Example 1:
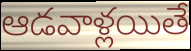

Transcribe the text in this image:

ఆడవాళ్లయితే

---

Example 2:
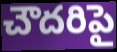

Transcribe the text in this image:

చౌదరిపై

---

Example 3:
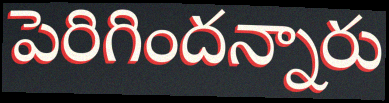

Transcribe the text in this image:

పెరిగిందన్నారు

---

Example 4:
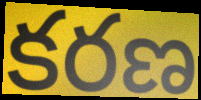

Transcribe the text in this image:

కరణ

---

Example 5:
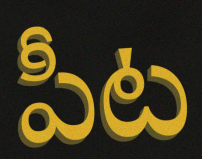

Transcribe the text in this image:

పీట